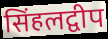
सिंहलद्वीप